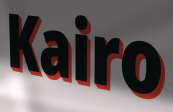
Kairo